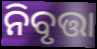
ନିବୃତ୍ତା